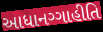
આધાનગ્ગાહીતિ